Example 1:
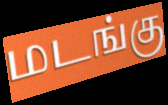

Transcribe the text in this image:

மடங்கு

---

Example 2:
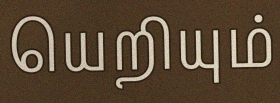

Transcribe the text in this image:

யெறியும்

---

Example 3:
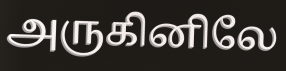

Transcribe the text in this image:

அருகினிலே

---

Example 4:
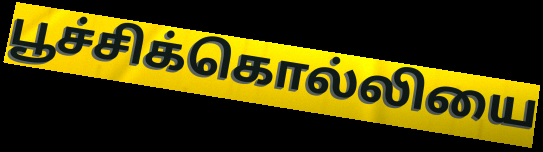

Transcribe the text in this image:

பூச்சிக்கொல்லியை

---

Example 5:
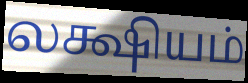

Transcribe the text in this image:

லக்ஷியம்